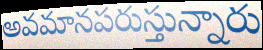
అవమానపరుస్తున్నారు